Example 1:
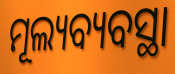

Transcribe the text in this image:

ମୂଲ୍ୟବ୍ୟବସ୍ଥା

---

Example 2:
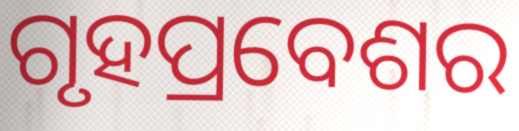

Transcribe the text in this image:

ଗୃହପ୍ରବେଶର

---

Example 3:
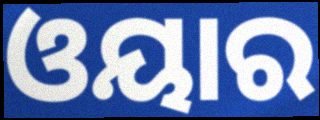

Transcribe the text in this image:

ଓୟାର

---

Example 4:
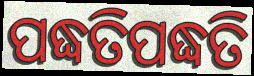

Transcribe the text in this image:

ପଦ୍ଧତିପଦ୍ଧତି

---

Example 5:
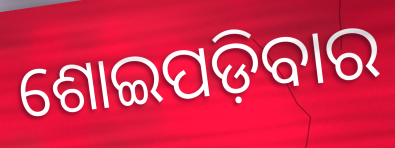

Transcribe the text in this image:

ଶୋଇପଡ଼ିବାର